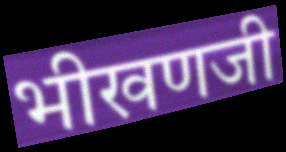
भीखणजी